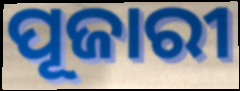
ପୂଜାରୀ